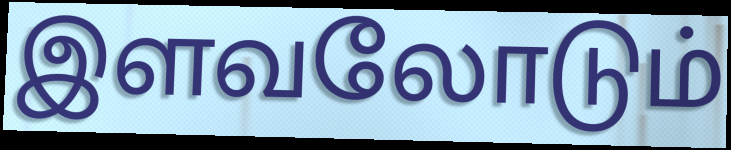
இளவலோடும்